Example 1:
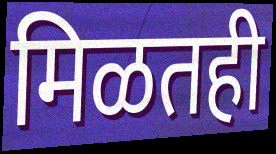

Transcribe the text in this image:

मिळतही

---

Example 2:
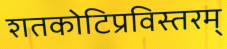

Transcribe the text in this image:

शतकोटिप्रविस्तरम्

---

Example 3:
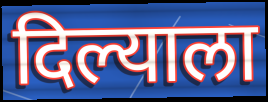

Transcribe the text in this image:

दिल्याला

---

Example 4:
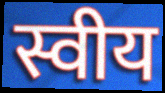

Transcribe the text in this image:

स्वीय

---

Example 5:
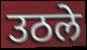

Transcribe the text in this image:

उठले